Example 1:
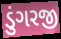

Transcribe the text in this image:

ડુંગરજી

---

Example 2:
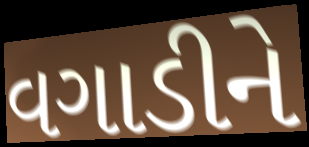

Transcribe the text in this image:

વગાડીને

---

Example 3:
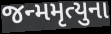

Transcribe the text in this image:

જન્મમૃત્યુના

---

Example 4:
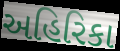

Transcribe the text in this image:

અહિરિકા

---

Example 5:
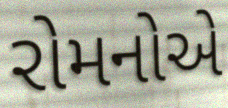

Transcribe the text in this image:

રોમનોએ